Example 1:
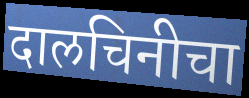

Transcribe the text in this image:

दालचिनीचा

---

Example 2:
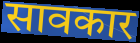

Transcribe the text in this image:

सावकार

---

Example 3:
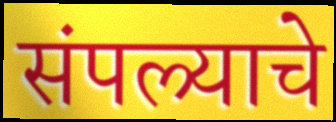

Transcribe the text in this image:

संपल्याचे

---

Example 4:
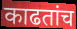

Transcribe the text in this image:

काढतांच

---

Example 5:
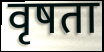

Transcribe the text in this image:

वृषता